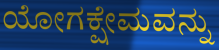
ಯೋಗಕ್ಷೇಮವನ್ನು